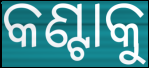
କଣ୍ଟାକୁ